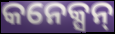
କନେକ୍ସନ୍